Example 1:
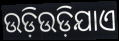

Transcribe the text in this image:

ଉଡ଼ିଉଡ଼ିଯାଏ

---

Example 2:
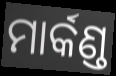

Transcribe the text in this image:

ମାର୍କଣ୍ଡ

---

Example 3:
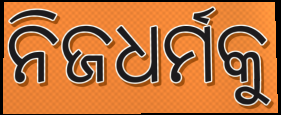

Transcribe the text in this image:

ନିଜଧର୍ମକୁ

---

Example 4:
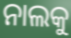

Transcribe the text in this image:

ନାଲକୁ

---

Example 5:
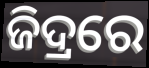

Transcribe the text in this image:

ଜିଦ୍ରରେ